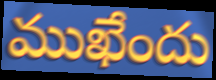
ముఖేందు